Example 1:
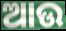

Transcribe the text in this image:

ଆଉ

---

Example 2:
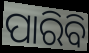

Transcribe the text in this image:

ପାରିବି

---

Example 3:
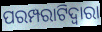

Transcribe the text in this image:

ପରମ୍ପରାଟିଦ୍ୱାରା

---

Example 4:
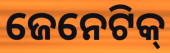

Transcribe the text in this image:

ଜେନେଟିକ୍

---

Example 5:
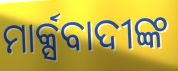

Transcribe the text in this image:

ମାର୍କ୍ସବାଦୀଙ୍କ